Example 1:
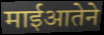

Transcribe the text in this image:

माईआतेने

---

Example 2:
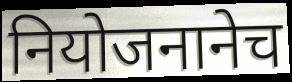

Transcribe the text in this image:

नियोजनानेच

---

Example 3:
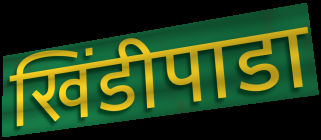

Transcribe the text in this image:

खिंडीपाडा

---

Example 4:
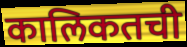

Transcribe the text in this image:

कालिकतची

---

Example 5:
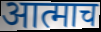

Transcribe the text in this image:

आत्माच